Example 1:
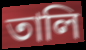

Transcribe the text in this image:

তালি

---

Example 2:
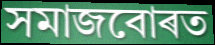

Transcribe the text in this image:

সমাজবোৰত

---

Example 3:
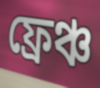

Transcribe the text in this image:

ফ্ৰেঞ্চ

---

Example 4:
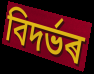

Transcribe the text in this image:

বিদৰ্ভৰ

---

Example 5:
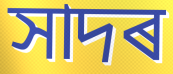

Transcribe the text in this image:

সাদৰ